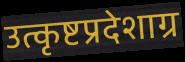
उत्कृष्टप्रदेशाग्र